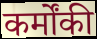
कर्मोंकी